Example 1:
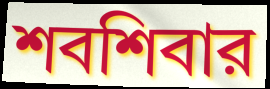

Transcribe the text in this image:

শবশিবার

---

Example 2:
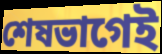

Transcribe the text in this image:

শেষভাগেই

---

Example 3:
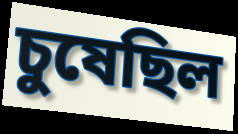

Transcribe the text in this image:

চুষেছিল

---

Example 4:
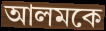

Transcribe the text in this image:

আলমকে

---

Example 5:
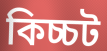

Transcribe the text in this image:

কিচ্চট